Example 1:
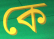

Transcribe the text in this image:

কে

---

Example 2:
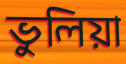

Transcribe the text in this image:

ভুলিয়া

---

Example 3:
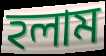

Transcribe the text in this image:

হলাম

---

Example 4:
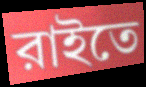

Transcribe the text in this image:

রাইতে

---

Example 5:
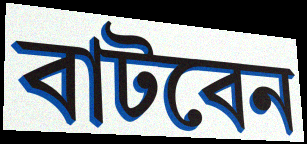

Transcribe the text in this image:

বাটবেন